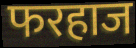
फरहाज